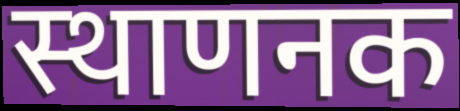
स्थाणनक